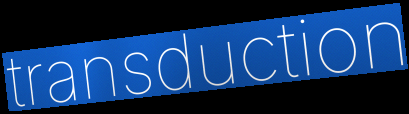
transduction